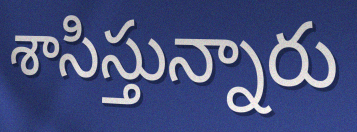
శాసిస్తున్నారు